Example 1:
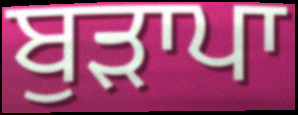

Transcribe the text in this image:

ਬੁੜਾਪਾ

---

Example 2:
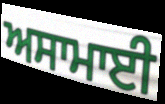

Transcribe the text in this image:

ਅਸਾਮਾਈ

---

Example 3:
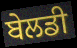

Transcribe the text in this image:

ਬੇਲਡੀ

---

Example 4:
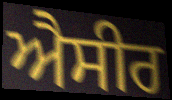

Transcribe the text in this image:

ਐਸੀਰ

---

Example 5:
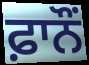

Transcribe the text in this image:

ਫ਼ਾਨੌਂ